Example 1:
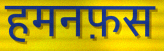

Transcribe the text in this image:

हमनफ़स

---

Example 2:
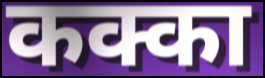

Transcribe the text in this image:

कक्का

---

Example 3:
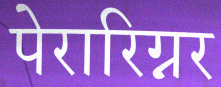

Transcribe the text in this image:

पेरारिग्नर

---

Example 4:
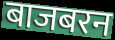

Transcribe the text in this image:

बाजबरन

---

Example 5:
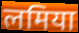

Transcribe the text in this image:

लमिया